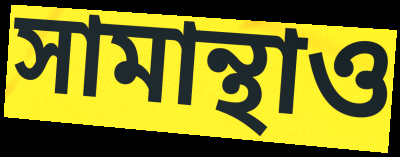
সামান্থাও